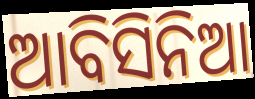
ଆବିସିନିଆ